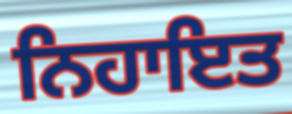
ਨਿਹਾਇਤ